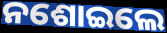
ନଶୋଇଲେ